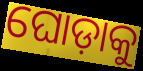
ଘୋଡ଼ାକୁ